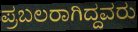
ಪ್ರಬಲರಾಗಿದ್ದವರು